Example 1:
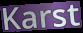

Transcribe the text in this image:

Karst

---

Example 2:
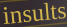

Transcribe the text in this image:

insults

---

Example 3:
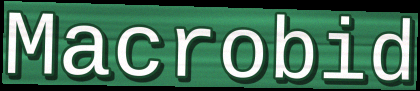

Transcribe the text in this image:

Macrobid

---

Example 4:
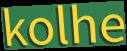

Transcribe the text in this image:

kolhe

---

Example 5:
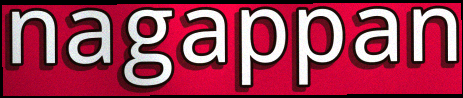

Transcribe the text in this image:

nagappan